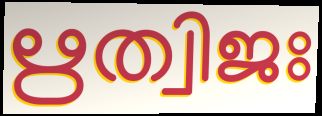
ഋത്വിജഃ